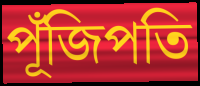
পূঁজিপতি